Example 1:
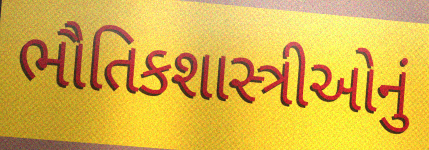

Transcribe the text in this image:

ભૌતિકશાસ્ત્રીઓનું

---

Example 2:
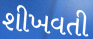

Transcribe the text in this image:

શીખવતી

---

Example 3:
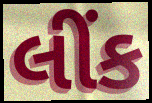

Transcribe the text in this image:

લીંક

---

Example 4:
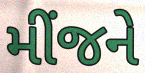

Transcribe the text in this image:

મીંજને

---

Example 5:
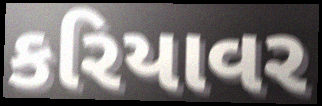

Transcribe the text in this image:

કરિયાવર